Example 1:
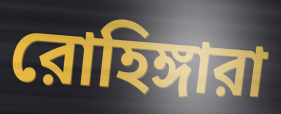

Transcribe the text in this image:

রোহিঙ্গারা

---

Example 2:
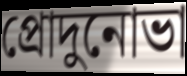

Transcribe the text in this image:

প্রোদুনোভা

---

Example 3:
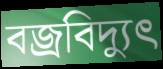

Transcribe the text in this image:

বজ্রবিদ্যুৎ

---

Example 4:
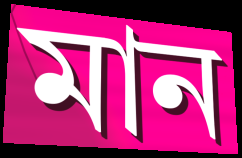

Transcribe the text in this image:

মান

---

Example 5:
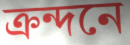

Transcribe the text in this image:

ক্রন্দনে